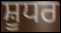
ਸ਼ੂਧਰ